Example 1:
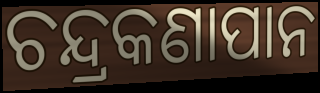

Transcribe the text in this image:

ଚନ୍ଦ୍ରକଣାପାନ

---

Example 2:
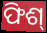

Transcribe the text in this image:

ଫିଶ୍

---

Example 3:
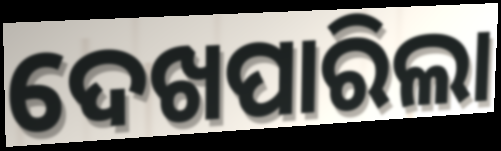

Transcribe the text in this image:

ଦେଖପାରିଲା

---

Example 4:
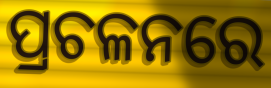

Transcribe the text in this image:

ପ୍ରଚଳନରେ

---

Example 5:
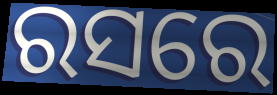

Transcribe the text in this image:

ରସରେ